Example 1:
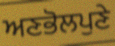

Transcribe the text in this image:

ਅਣਭੋਲਪੁਣੇ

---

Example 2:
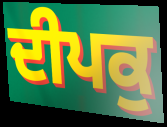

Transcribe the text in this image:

ਦੀਪਕੁ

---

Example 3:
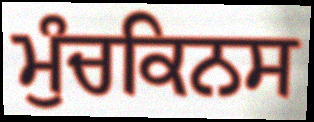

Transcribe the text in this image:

ਮੁੰਚਕਿਨਸ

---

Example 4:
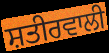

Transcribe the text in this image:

ਸ਼ਤੀਰਵਾਲੀ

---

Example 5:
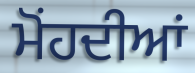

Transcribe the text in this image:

ਮੋਂਹਦੀਆਂ